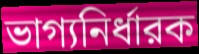
ভাগ্যনির্ধারক